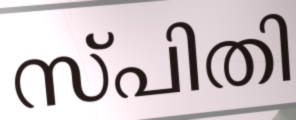
സ്പിതി